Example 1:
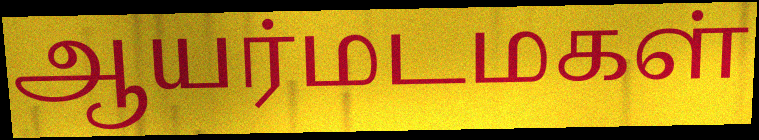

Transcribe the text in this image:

ஆயர்மடமகள்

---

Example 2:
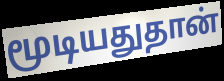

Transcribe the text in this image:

மூடியதுதான்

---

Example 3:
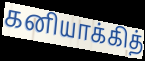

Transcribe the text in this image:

கனியாக்கித்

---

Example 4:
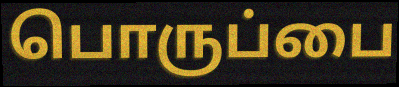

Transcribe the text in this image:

பொருப்பை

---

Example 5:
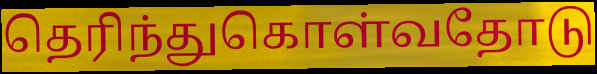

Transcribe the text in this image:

தெரிந்துகொள்வதோடு